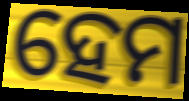
ହେମ